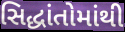
સિદ્ધાંતોમાંથી